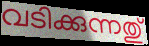
വടിക്കുന്നതു്